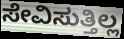
ಸೇವಿಸುತ್ತಿಲ್ಲ